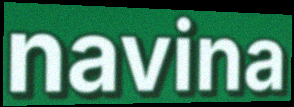
navina